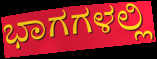
ಭಾಗಗಳಲ್ಲಿ